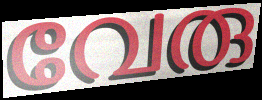
വേരു